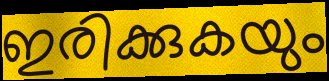
ഇരിക്കുകയും